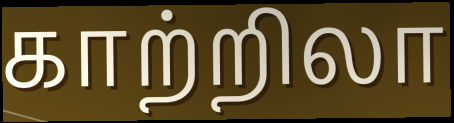
காற்றிலா